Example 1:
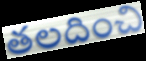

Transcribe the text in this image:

తలదించి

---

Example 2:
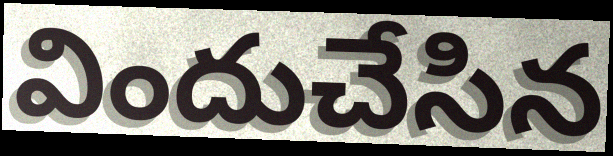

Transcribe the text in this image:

విందుచేసిన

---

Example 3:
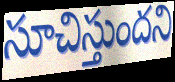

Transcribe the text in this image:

సూచిస్తుందని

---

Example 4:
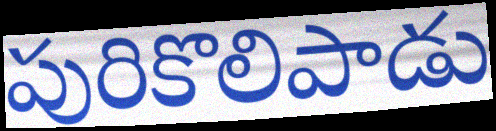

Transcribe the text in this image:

పురికొలిపాడు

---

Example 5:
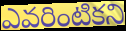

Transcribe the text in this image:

ఎవరింటికని